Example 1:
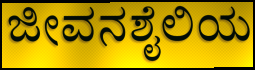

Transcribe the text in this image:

ಜೀವನಶೈಲಿಯ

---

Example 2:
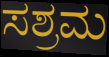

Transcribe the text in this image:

ಸಶ್ರಮ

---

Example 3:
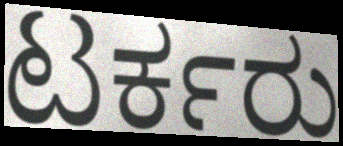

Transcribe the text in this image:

ಟರ್ಕರು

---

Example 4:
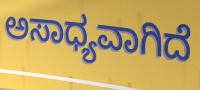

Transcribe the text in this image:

ಅಸಾಧ್ಯವಾಗಿದೆ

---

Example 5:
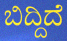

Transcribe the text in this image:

ಬಿದ್ದಿದೆ